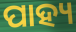
ପାହ୍ୟ